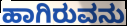
ಹಾಗಿರುವನು